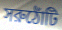
সরুঠোঁটি